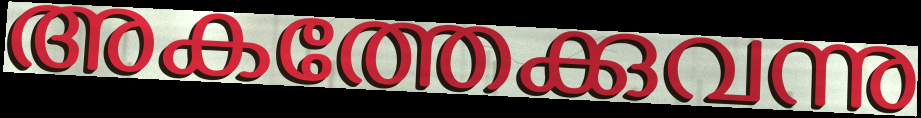
അകത്തേക്കുവന്നു